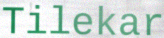
Tilekar